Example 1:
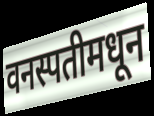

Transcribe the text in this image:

वनस्पतीमधून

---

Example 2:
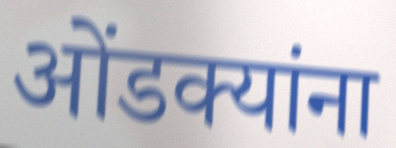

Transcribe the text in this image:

ओंडक्यांना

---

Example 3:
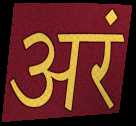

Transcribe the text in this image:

अरं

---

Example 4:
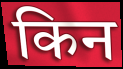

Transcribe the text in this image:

किन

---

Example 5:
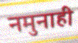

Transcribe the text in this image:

नमुनाही